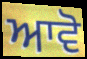
ਆਵੋ